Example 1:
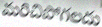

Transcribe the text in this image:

మరిచిపోగలదు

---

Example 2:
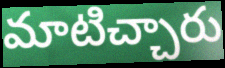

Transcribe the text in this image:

మాటిచ్చారు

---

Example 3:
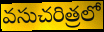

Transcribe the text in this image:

వసుచరిత్రలో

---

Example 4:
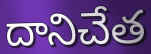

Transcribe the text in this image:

దానిచేత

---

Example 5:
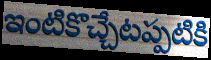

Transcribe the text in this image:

ఇంటికొచ్చేటప్పటికి